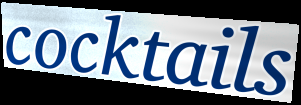
cocktails